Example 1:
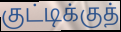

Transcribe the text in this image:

குட்டிக்குத்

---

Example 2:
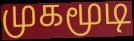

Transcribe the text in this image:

முகமூடி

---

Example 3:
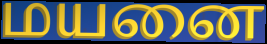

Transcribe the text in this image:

மயனை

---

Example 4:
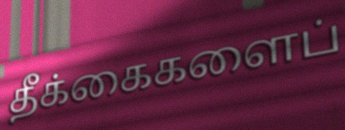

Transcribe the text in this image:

தீக்கைகளைப்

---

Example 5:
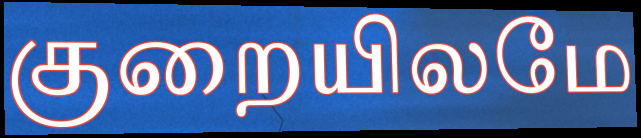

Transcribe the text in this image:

குறையிலமே